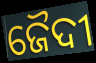
ଜୈଦୀ